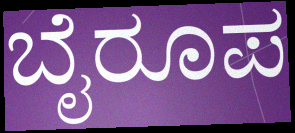
ಬೈರೂಪ